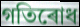
গতিৰোধ